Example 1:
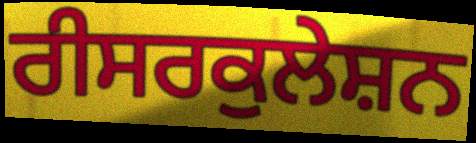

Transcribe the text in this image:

ਰੀਸਰਕੁਲੇਸ਼ਨ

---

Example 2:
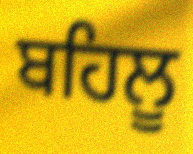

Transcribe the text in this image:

ਬਹਿਲੂ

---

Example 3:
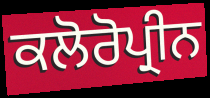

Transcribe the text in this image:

ਕਲੋਰੋਪ੍ਰੀਨ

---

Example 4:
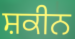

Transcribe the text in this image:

ਸ਼ਕੀਨ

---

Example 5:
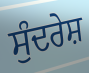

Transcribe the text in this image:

ਸੁੰਦਰੇਸ਼